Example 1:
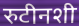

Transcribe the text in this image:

रुटीनशी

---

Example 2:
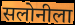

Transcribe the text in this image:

सलोनीला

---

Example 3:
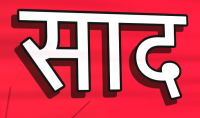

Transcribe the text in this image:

साद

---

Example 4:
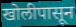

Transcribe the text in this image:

खोलीपासून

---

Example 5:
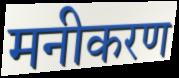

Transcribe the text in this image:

मनीकरण